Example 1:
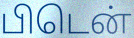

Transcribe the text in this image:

பிடென்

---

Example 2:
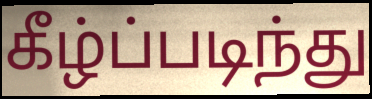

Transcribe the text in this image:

கீழ்ப்படிந்து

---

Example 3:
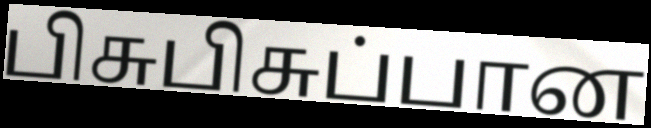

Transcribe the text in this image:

பிசுபிசுப்பான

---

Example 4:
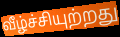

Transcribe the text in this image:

வீழ்ச்சியுற்றது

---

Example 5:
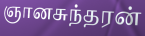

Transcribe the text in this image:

ஞானசுந்தரன்